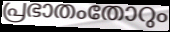
പ്രഭാതംതോറും